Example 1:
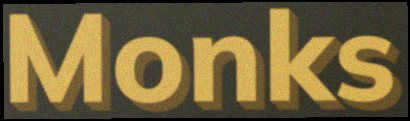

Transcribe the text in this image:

Monks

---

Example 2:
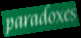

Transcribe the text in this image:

paradoxes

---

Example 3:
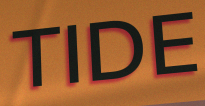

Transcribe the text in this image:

TIDE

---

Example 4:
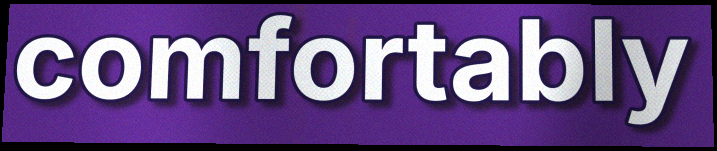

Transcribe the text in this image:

comfortably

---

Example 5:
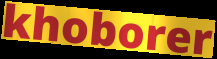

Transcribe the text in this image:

khoborer